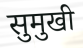
सुमुखी